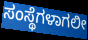
ಸಂಸ್ಥೆಗಳಾಗಲೀ